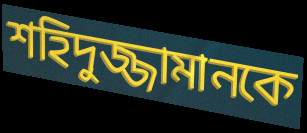
শহিদুজ্জামানকে